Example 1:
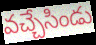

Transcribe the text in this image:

వచ్చేసిండు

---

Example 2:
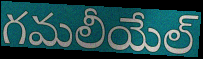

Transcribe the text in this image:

గమలీయేల్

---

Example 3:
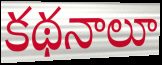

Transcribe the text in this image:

కథనాలూ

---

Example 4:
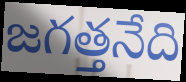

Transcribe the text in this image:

జగత్తనేది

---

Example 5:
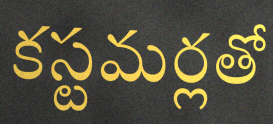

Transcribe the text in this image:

కస్టమర్లతో